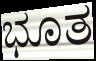
ಭೂತ